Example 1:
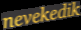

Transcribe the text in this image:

nevekedik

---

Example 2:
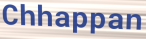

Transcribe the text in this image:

Chhappan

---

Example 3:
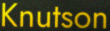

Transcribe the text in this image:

Knutson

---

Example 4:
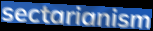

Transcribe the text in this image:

sectarianism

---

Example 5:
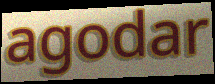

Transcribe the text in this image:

agodar